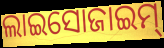
ଲାଇସୋଜାଇମ୍